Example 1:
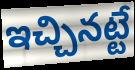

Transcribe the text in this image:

ఇచ్చినట్టే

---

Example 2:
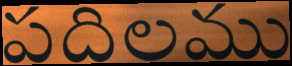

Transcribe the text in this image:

పదిలము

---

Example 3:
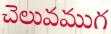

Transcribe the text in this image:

చెలువముగ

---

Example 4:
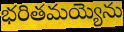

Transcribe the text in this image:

భరితమయ్యెను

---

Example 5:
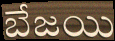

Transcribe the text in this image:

బేజయి